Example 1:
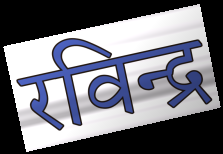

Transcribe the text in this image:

रविन्द्र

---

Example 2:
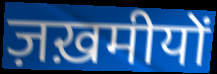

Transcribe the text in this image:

ज़ख़मीयों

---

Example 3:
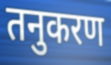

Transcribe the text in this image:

तनुकरण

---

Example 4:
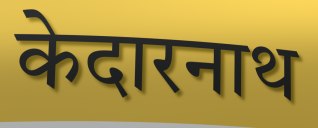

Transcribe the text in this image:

केदारनाथ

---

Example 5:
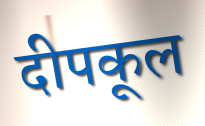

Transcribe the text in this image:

दीपकूल